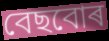
বেছবোৰ